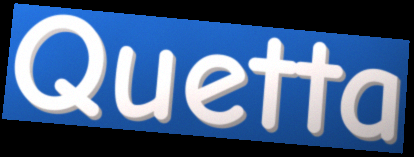
Quetta